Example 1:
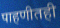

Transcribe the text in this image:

पाहणीतही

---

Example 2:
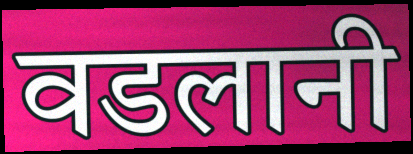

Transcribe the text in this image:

वडलानी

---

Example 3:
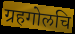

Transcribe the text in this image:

ग्रहगोलचि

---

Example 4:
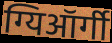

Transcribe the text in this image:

ग्यिऑर्गी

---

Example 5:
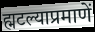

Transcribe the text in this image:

ह्मटल्याप्रमाणें